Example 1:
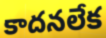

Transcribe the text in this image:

కాదనలేక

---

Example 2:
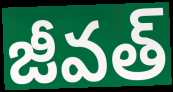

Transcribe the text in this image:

జీవత్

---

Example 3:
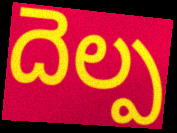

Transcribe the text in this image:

దెల్ప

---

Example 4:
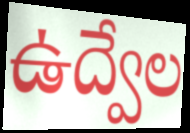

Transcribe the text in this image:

ఉద్వేల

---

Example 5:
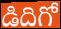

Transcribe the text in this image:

డిదిగో